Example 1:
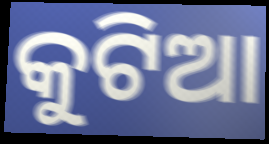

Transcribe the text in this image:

କୁଟିଆ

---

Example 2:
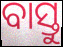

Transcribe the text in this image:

ବାସ୍ତୁ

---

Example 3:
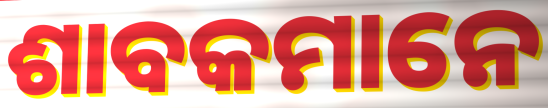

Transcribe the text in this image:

ଶାବକମାନେ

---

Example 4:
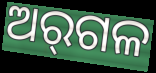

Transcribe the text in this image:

ଅର୍‌ଗଳ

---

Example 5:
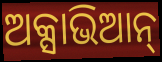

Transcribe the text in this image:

ଅକ୍ସାଭିଆନ୍